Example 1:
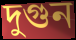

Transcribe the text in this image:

দুগুন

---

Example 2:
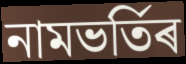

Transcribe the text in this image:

নামভৰ্তিৰ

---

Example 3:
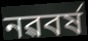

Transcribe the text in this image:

নৱবৰ্ষ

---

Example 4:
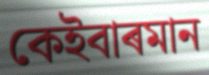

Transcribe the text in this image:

কেইবাৰমান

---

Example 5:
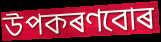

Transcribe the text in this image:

উপকৰণবোৰ